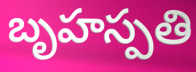
బృహస్పతి